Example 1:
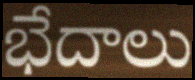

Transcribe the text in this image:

భేదాలు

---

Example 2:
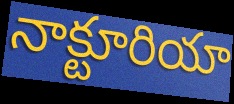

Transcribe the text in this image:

నాక్టూరియా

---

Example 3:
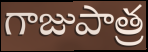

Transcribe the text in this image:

గాజుపాత్ర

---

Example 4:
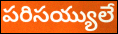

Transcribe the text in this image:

పరిసయ్యులే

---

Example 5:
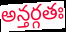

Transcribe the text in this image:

అన్తర్గతః